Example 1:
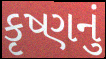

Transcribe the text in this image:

કૃષ્ણનું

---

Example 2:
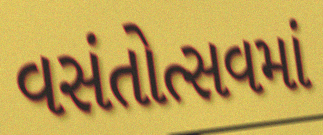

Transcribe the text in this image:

વસંતોત્સવમાં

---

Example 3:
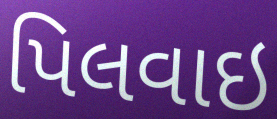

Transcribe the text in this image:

પિલવાઇ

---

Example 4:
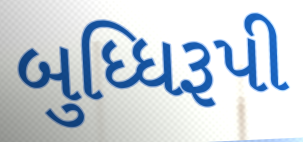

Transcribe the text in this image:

બુધ્ધિરૂપી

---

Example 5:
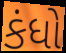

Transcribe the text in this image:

કંધો